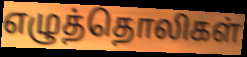
எழுத்தொலிகள்